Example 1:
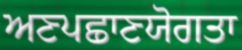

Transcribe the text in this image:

ਅਣਪਛਾਣਯੋਗਤਾ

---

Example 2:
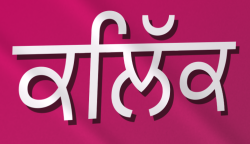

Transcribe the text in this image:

ਕਲਿੱਕ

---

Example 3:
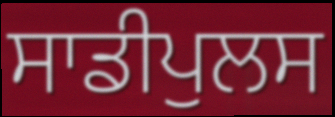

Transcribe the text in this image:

ਸਾਡੀਪੁਲਸ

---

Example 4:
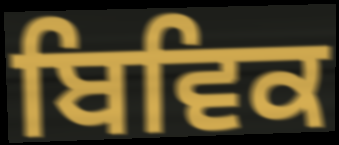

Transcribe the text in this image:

ਬਿਵਿਕ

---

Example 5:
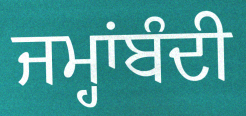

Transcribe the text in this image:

ਜਮ੍ਹਾਂਬੰਦੀ